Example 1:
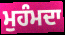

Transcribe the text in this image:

ਮੁਹੰਮਦਾ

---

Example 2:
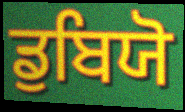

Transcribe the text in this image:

ਡੁਬਿਯੋ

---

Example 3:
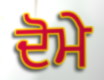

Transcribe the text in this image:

ਦੋਮੇ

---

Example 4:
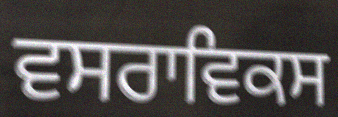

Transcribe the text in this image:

ਵਸਰਾਵਿਕਸ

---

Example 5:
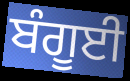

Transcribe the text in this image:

ਬੰਗੂਈ